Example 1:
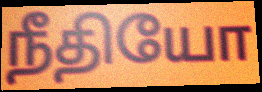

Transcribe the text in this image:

நீதியோ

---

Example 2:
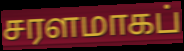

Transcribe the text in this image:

சரளமாகப்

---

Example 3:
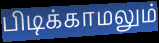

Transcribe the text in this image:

பிடிக்காமலும்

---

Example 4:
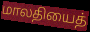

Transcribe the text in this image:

மாலதியைத்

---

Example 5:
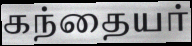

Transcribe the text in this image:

கந்தையர்